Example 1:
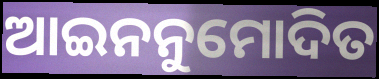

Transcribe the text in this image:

ଆଇନନୁମୋଦିତ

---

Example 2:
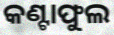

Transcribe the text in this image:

କଣ୍ଟାଫୁଲ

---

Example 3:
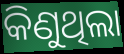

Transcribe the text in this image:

କିଣୁଥିଲା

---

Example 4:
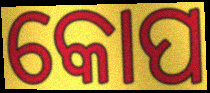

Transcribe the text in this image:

କୋପ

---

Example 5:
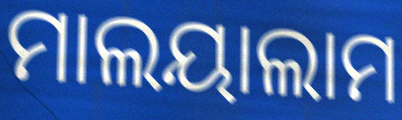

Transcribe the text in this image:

ମାଲୟାଲାମ